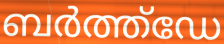
ബർത്ത്ഡേ